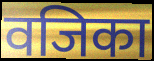
वजिका